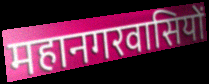
महानगरवासियों